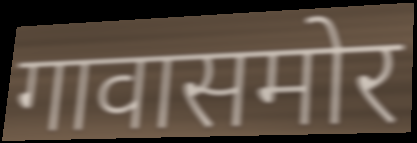
गावासमोर